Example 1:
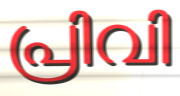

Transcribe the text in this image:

പ്രിവി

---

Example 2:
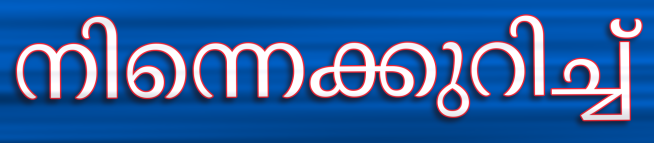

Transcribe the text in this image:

നിന്നെക്കുറിച്ച്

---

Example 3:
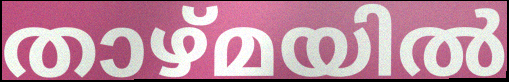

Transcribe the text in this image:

താഴ്മയിൽ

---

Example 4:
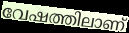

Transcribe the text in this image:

വേഷത്തിലാണ്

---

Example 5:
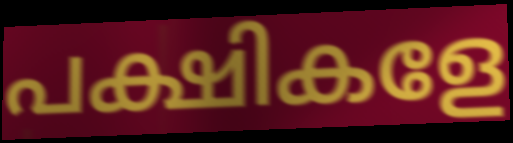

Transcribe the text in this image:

പക്ഷികളേ